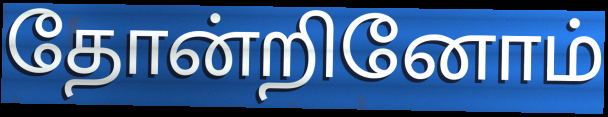
தோன்றினோம்